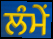
ਲੰਮੇਂ